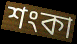
শংকা